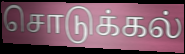
சொடுக்கல்